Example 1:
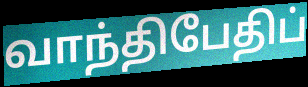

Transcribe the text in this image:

வாந்திபேதிப்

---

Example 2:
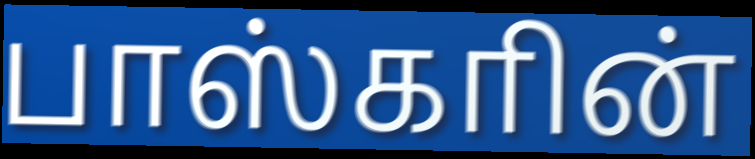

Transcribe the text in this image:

பாஸ்கரின்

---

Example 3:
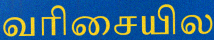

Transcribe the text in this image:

வரிசையில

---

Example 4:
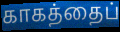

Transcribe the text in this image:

காகத்தைப்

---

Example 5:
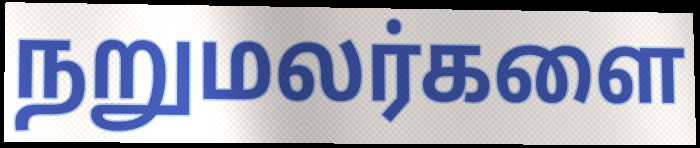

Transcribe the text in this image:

நறுமலர்களை